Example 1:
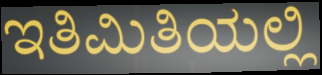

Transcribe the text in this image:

ಇತಿಮಿತಿಯಲ್ಲಿ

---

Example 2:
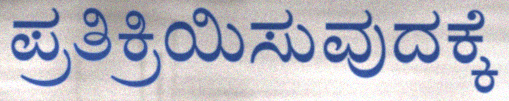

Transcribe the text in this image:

ಪ್ರತಿಕ್ರಿಯಿಸುವುದಕ್ಕೆ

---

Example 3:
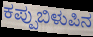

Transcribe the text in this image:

ಕಪ್ಪುಬಿಳುಪಿನ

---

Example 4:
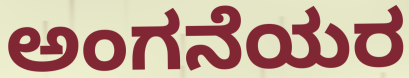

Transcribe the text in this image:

ಅಂಗನೆಯರ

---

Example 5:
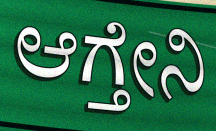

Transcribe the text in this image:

ಆಗ್ತೇನಿ